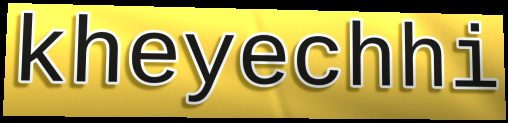
kheyechhi